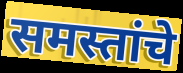
समस्तांचे